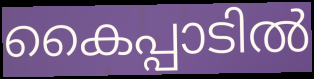
കൈപ്പാടിൽ